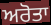
ਅਰੋਤਾ